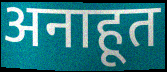
अनाहूत